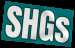
SHGs